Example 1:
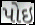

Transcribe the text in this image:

પોઇ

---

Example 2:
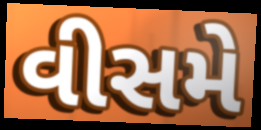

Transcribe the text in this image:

વીસમે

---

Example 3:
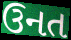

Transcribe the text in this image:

ઉનત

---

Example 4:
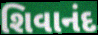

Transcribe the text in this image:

શિવાનંદ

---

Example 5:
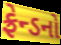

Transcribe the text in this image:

ફ્રેન્ડનો